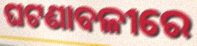
ଘଟଣାବଳୀରେ